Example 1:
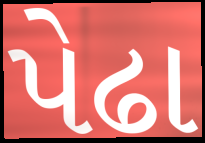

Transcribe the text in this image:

પેઢા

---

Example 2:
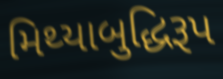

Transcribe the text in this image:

મિથ્યાબુદ્ધિરૂપ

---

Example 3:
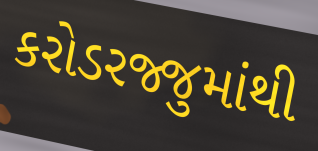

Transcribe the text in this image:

કરોડરજ્જુમાંથી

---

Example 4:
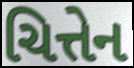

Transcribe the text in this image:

ચિત્તેન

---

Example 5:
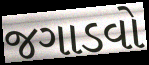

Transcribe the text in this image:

જગાડવો